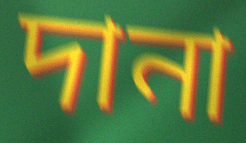
দানা